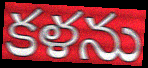
కళను